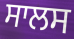
ਸਾਲਸ